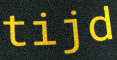
tijd